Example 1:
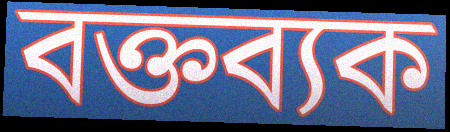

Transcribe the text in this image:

বক্তব্যক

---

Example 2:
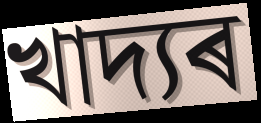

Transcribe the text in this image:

খাদ্যৰ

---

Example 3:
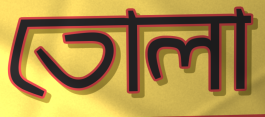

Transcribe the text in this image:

তোলা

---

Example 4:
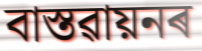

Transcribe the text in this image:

বাস্তৱায়নৰ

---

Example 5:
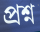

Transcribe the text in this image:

প্ৰশ্ন